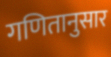
गणितानुसार